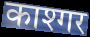
काश्गर